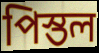
পিস্তল